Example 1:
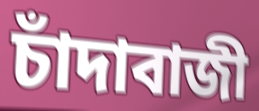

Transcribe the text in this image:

চাঁদাবাজী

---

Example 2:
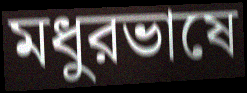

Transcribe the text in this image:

মধুরভাষে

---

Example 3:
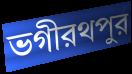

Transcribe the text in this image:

ভগীরথপুর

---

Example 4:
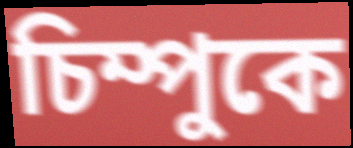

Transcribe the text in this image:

চিম্পুকে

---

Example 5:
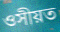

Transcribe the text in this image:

ওসীয়ত